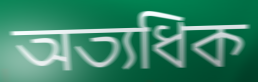
অত্যধিক